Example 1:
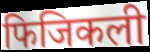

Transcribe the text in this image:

फिजिकली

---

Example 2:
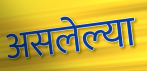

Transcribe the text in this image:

असलेल्या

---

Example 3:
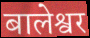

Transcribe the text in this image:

बालेश्वर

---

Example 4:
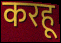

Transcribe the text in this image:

करहू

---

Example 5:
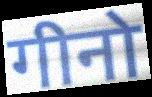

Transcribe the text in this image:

गीनो